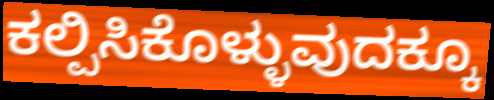
ಕಲ್ಪಿಸಿಕೊಳ್ಳುವುದಕ್ಕೂ